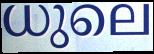
ധുലെ